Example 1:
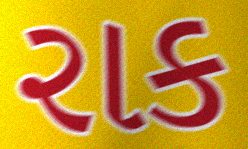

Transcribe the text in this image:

રાક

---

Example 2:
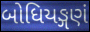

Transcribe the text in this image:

બોધિયઙ્ગણં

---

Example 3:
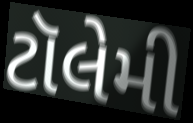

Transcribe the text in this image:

ટૉલેમી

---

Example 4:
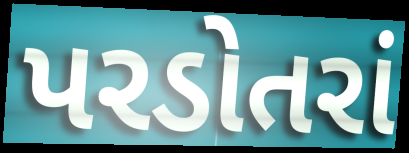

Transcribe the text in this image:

પરડોતરાં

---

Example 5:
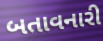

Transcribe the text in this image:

બતાવનારી